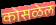
कोसळेल